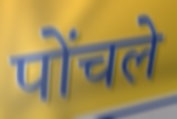
पोंचले